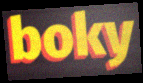
boky